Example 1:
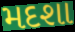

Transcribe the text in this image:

મદશા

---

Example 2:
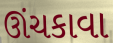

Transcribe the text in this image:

ઊંચકાવા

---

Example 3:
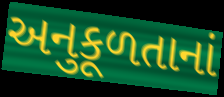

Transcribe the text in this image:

અનુકૂળતાનાં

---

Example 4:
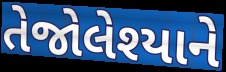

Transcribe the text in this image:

તેજોલેશ્યાને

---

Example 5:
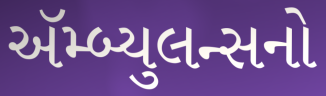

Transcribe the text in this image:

ઍમ્બ્યુલન્સનો